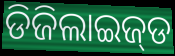
ଡିଜିଲାଇଜ୍‌ଡ